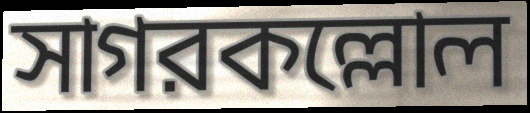
সাগরকল্লোল